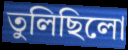
তুলিছিলো